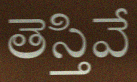
తెస్తివే